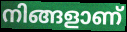
നിങ്ങളാണ്